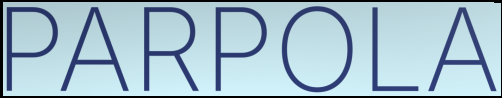
PARPOLA